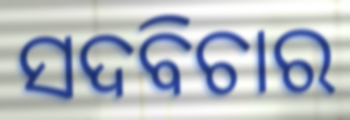
ସଦବିଚାର